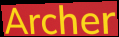
Archer